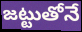
జట్టుతోనే